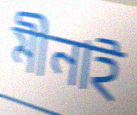
মীনাই